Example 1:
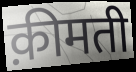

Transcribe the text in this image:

क़ीमती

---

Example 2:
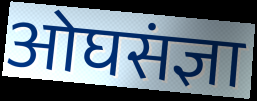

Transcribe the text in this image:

ओघसंज्ञा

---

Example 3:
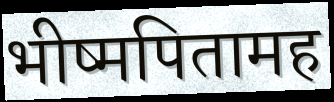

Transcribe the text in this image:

भीष्मपितामह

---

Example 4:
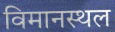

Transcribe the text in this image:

विमानस्थल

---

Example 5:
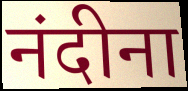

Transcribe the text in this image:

नंदीना